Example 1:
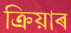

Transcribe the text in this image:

ক্ৰিয়াৰ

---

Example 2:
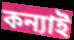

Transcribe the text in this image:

কন্যাই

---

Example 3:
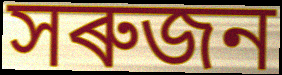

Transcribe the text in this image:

সৰুজন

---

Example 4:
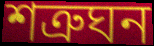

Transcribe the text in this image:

শত্ৰুঘন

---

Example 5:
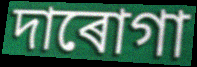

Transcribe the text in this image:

দাৰোগা